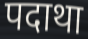
पदाथा